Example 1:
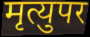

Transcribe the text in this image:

मृत्युपर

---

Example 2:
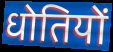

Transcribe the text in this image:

धोतियों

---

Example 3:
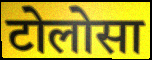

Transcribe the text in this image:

टोलोसा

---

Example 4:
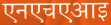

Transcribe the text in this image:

एनएचएआइ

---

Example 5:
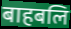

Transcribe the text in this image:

बाहबलि